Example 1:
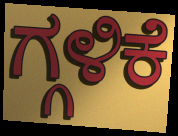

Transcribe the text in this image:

ಗ್ಗಳಿಕೆ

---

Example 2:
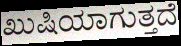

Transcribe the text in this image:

ಖುಷಿಯಾಗುತ್ತದೆ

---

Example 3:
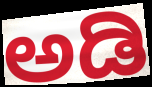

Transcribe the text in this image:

ಅಡಿ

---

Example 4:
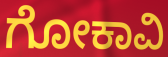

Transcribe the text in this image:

ಗೋಕಾವಿ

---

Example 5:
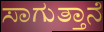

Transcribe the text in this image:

ಸಾಗುತ್ತಾನೆ